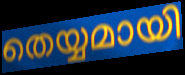
തെയ്യമായി